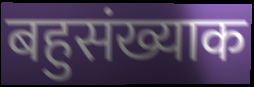
बहुसंख्याक